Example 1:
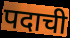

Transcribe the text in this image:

पदाची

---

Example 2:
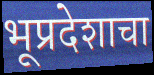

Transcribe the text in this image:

भूप्रदेशाचा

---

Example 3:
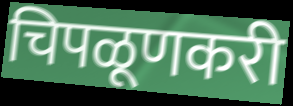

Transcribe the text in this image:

चिपळूणकरी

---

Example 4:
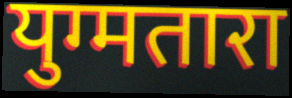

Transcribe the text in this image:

युग्मतारा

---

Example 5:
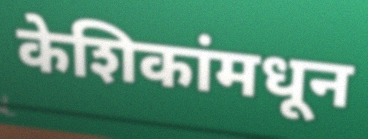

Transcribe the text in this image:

केशिकांमधून